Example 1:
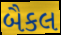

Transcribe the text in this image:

બૈકલ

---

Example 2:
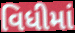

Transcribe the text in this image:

વિધીમાં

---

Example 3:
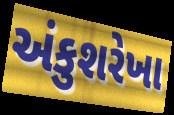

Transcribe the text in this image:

અંકુશરેખા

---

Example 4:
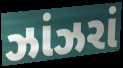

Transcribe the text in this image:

ઝાંઝરાં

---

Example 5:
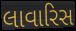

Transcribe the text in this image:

લાવારિસ